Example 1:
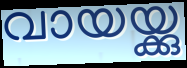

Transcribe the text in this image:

വായയ്ക്കു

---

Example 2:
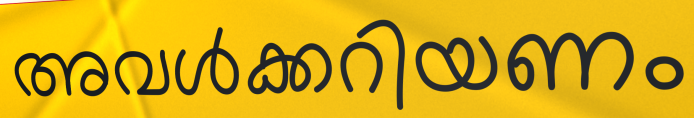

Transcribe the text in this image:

അവൾക്കറിയണം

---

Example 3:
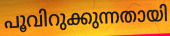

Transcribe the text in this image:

പൂവിറുക്കുന്നതായി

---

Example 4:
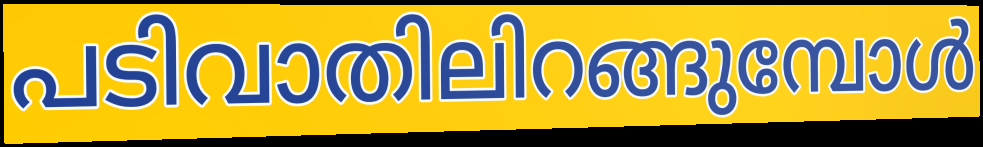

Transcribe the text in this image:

പടിവാതിലിറങ്ങുമ്പോൾ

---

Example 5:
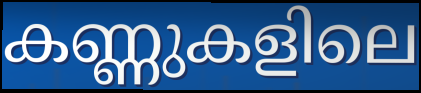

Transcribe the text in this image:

കണ്ണുകളിലെ